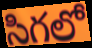
సిగలో